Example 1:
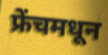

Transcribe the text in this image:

फ्रेंचमधून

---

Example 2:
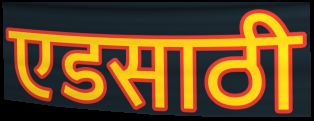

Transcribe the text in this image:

एडसाठी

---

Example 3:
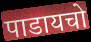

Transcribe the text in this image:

पाडायचो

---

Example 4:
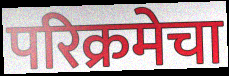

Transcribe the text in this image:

परिक्रमेचा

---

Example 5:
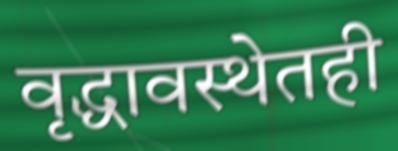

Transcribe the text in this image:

वृद्धावस्थेतही